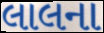
લાલના